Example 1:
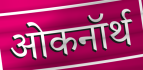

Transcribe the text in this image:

ओकनॉर्थ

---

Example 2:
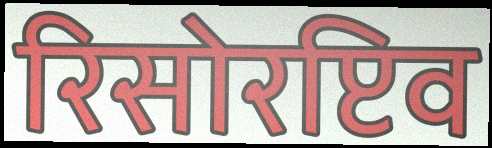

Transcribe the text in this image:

रिसोरप्टिव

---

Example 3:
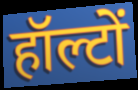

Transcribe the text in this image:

हॉल्टों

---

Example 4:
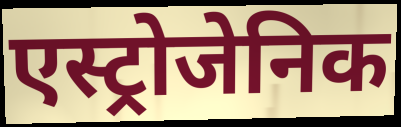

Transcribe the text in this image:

एस्ट्रोजेनिक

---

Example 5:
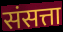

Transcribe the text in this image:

संसत्ता